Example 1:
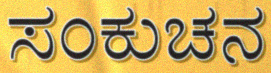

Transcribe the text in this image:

ಸಂಕುಚನ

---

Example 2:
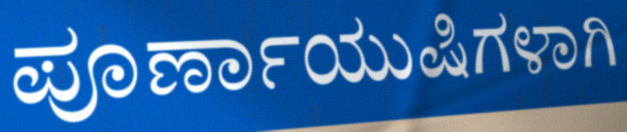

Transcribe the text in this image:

ಪೂರ್ಣಾಯುಷಿಗಳಾಗಿ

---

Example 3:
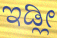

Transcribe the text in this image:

ಇಡ್ಲೀ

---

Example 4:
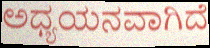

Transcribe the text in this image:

ಅಧ್ಯಯನವಾಗಿದೆ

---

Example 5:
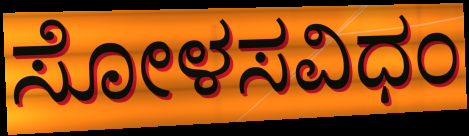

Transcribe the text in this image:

ಸೋಳಸವಿಧಂ